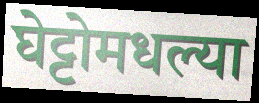
घेट्टोमधल्या